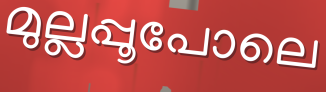
മുല്ലപ്പൂപോലെ